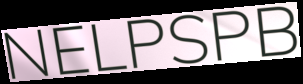
NELPSPB